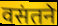
वसंतने